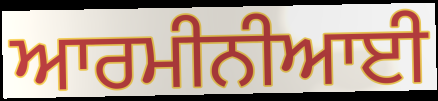
ਆਰਮੀਨੀਆਈ